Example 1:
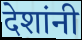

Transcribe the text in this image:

देशांनी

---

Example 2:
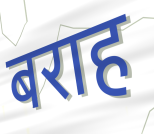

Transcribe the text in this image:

बराह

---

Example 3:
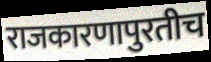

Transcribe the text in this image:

राजकारणापुरतीच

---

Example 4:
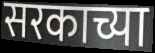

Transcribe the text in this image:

सरकाच्या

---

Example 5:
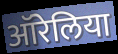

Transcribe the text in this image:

ऑरेलिया